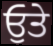
ਓੁਤੇ